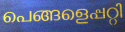
പെങ്ങളെപ്പറ്റി